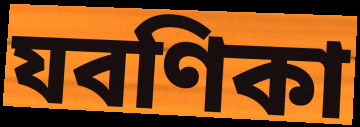
যবণিকা